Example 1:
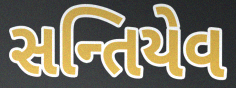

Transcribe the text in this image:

સન્તિયેવ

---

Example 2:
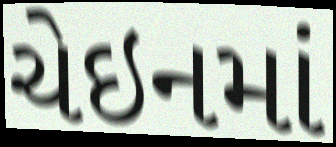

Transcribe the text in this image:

ચેઇનમાં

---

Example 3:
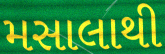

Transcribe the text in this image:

મસાલાથી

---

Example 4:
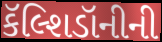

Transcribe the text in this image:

કૅલ્શિડૉનીની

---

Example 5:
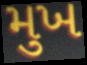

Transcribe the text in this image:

મુખ